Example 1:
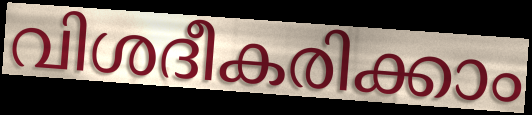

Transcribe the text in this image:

വിശദീകരിക്കാം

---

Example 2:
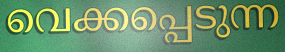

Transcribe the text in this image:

വെക്കപ്പെടുന്ന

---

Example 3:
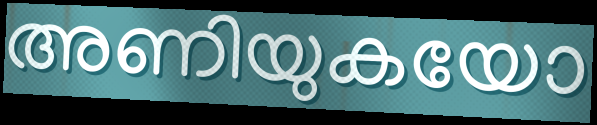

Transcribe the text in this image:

അണിയുകയോ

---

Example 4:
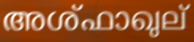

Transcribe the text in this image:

അശ്ഫാഖുല്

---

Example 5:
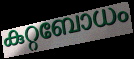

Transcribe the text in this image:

കുറ്റബോധം